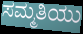
ಸಮ್ಮತಿಯು